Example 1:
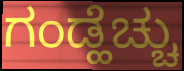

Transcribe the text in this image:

ಗಂಡ್ಹೆಚ್ಚು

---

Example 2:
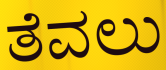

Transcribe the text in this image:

ತೆವಲು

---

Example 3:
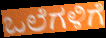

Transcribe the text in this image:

ಒಲೆಗಳಿಗೆ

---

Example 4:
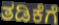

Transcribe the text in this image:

ತಡಿಕೆಗೆ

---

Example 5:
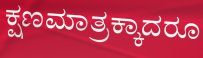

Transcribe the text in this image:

ಕ್ಷಣಮಾತ್ರಕ್ಕಾದರೂ